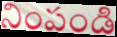
నింపండి